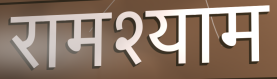
रामश्याम